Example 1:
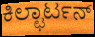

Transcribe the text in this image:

ಕಿಲ್ಟಾರ್ಟನ್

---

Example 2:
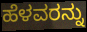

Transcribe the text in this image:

ಹೆಳವರನ್ನು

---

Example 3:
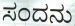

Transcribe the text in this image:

ಸಂದನು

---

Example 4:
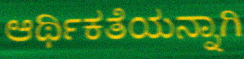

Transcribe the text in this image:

ಆರ್ಥಿಕತೆಯನ್ನಾಗಿ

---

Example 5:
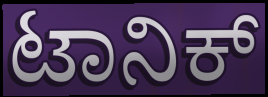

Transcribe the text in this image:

ಟಾನಿಕ್